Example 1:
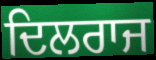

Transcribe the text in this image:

ਦਿਲਰਾਜ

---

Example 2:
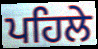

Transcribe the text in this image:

ਪਹਿਲੇ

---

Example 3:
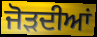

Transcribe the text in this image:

ਜੋੜਦੀਆਂ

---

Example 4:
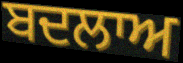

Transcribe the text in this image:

ਬਦਲਾਅ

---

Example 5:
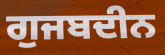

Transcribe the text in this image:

ਗੁਜਬਦੀਨ